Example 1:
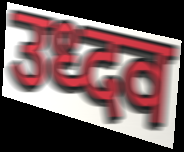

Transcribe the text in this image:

उध्दव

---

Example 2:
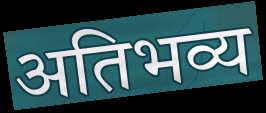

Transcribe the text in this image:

अतिभव्य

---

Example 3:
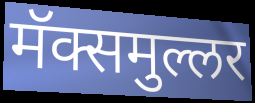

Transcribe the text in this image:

मॅक्समुल्लर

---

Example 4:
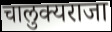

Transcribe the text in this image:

चालुक्यराजा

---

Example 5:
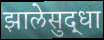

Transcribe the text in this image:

झालेसुद्धा